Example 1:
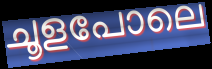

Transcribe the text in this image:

ചൂളപോലെ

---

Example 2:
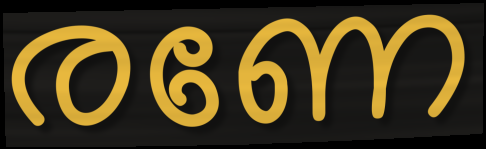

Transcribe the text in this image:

രണേ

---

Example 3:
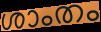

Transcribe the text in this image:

ശാംതം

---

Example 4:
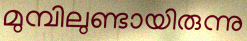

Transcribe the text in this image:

മുമ്പിലുണ്ടായിരുന്നു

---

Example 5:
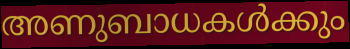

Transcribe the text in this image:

അണുബാധകൾക്കും